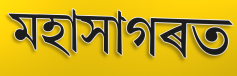
মহাসাগৰত